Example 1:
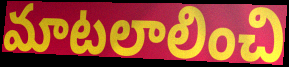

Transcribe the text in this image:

మాటలాలించి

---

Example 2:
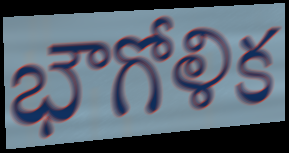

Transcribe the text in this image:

భౌగోళిక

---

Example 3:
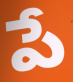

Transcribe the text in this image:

పే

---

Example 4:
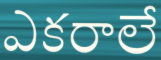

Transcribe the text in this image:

ఎకరాలే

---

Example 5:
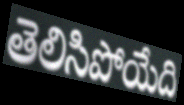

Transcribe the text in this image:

తెలిసిపోయేది